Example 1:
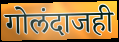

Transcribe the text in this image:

गोलंदाजही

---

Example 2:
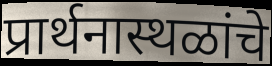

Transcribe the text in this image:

प्रार्थनास्थळांचे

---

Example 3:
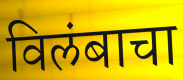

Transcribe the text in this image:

विलंबाचा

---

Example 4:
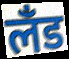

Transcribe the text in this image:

लँड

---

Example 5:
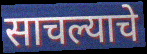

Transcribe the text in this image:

साचल्याचे